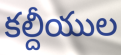
కల్దీయుల